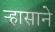
ऱ्हासाने